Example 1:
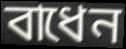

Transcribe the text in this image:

বাধেন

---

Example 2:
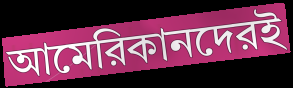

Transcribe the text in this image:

আমেরিকানদেরই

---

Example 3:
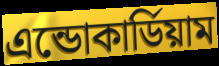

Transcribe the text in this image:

এন্ডোকার্ডিয়াম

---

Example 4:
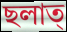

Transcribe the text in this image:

ছলাত্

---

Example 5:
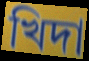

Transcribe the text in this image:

খিদা